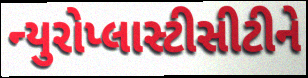
ન્યુરોપ્લાસ્ટીસીટીને